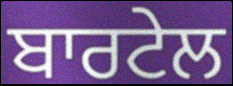
ਬਾਰਟੇਲ